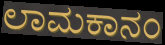
ಲಾಮಕಾನಂ